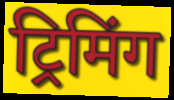
ट्रिमिंग